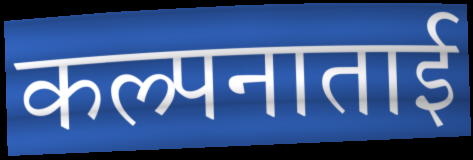
कल्पनाताई